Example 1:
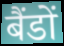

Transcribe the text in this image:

बैंडों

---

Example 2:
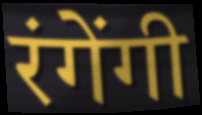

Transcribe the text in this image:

रंगेंगी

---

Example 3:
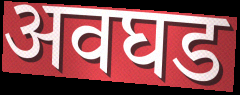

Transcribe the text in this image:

अवघड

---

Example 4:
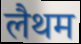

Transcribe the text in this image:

लैथम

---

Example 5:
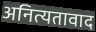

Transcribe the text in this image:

अनित्यतावाद